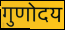
गुणोदय